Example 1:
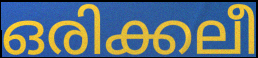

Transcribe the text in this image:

ഒരിക്കലീ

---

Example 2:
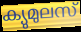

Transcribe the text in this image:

ക്യുമുലസ്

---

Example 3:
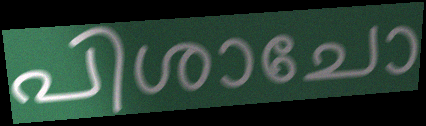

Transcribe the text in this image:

പിശാചോ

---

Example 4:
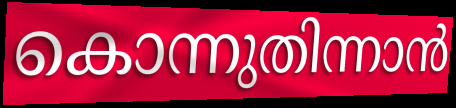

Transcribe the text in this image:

കൊന്നുതിന്നാൻ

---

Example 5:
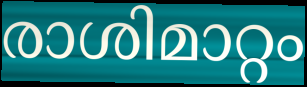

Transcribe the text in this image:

രാശിമാറ്റം